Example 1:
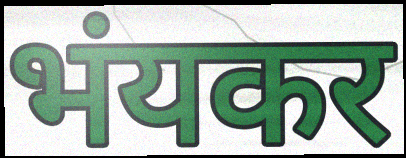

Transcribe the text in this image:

भंयकर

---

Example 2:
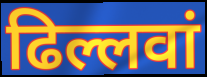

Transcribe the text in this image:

ढिल्लवां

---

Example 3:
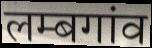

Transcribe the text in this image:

लम्बगांव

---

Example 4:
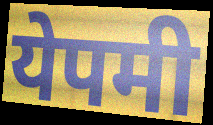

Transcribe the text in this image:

येपमी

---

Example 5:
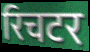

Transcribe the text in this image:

रिचटर